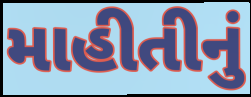
માહીતીનું